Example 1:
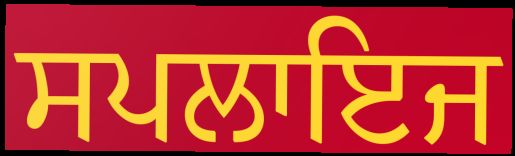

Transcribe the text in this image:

ਸਪਲਾਇਜ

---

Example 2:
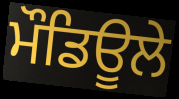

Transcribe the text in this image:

ਮੌਡਿਊਲੇ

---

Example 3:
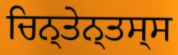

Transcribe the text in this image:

ਚਿਨ੍ਤੇਨ੍ਤਸ੍ਸ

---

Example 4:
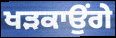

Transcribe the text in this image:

ਖੜਕਾਉਂਗੇ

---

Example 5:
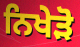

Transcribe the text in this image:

ਨਿਖੇੜੋ